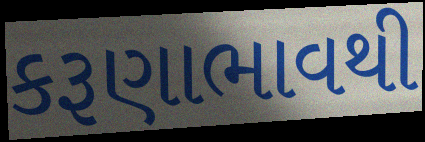
કરૂણાભાવથી